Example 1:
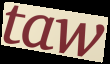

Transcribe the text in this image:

taw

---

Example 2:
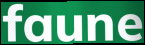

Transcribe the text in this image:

faune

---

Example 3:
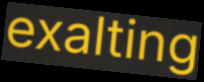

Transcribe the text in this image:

exalting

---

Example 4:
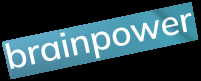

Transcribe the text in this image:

brainpower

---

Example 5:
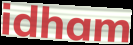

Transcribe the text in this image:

idham